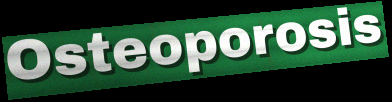
Osteoporosis